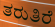
ತರುತಿರೆ